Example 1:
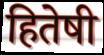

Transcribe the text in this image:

हितेषी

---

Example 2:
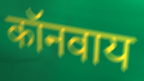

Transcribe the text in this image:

कॉनवाय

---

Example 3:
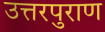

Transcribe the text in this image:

उत्तरपुराण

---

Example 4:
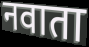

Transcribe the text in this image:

नवाता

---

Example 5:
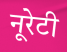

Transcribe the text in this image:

नूरेटी